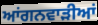
ਆਂਗਨਵਾੜੀਆਂ